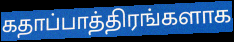
கதாப்பாத்திரங்களாக